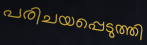
പരിചയപ്പെടുത്തി